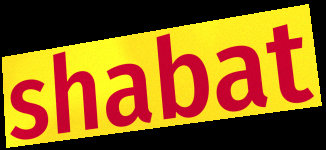
shabat